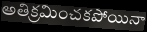
అతిక్రమించకపోయినా